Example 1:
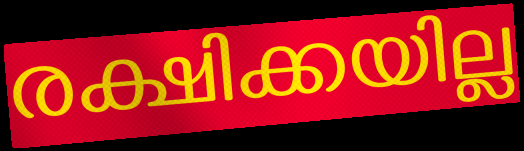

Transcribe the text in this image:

രക്ഷിക്കയില്ല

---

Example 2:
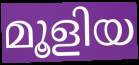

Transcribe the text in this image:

മൂളിയ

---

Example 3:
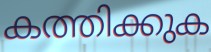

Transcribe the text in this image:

കത്തിക്കുക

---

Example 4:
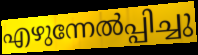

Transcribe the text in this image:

എഴുന്നേൽപ്പിച്ചു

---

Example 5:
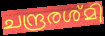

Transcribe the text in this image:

ചന്ദ്രരശ്മി